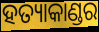
ହତ୍ୟାକାଣ୍ଡର